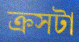
ক্রসটা